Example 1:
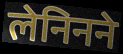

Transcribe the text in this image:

लेनिनने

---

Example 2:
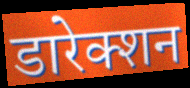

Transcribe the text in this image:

डारेक्शन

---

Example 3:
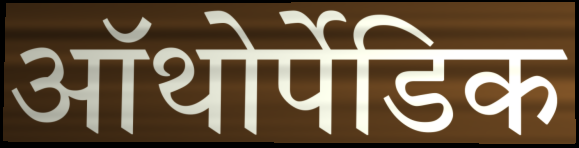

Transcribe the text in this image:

ऑथोर्पेडिक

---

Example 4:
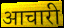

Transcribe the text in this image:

आचारी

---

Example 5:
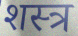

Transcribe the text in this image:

शस्त्र